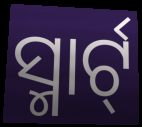
ସ୍ମାର୍ଟ୍